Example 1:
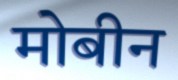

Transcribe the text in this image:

मोबीन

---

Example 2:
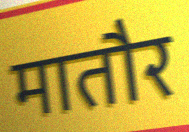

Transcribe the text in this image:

मातौर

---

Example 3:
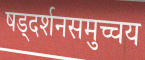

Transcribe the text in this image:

षड्दर्शनसमुच्चय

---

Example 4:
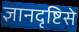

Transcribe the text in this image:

ज्ञानदृष्टिसे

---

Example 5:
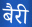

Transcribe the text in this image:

बैरी